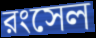
রংসেল